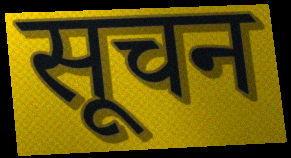
सूचन